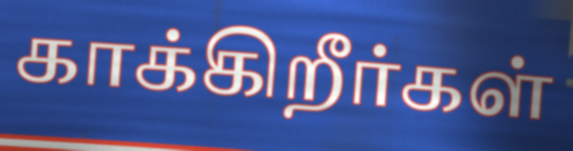
காக்கிறீர்கள்